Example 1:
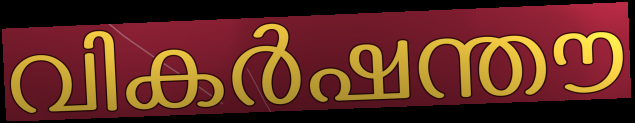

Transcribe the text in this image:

വികർഷന്തൗ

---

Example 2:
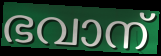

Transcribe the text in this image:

ഭവാന്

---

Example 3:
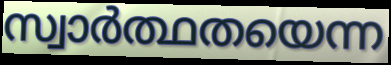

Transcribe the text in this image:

സ്വാർത്ഥതയെന്ന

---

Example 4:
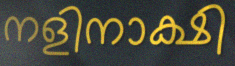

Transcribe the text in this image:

നളിനാക്ഷി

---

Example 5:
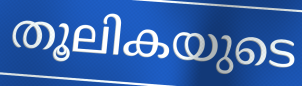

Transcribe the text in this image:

തൂലികയുടെ